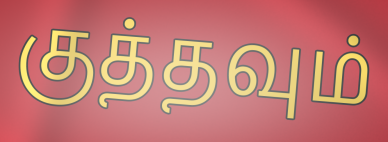
குத்தவும்